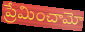
ప్రేమించామో